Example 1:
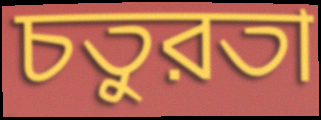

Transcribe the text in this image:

চতুরতা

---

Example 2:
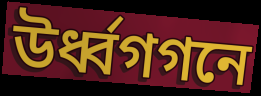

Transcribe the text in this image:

উর্ধ্বগগনে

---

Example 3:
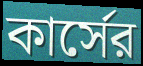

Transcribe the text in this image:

কার্সের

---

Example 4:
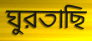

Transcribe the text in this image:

ঘুরতাছি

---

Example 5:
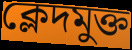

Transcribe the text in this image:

ক্লেদমুক্ত